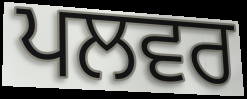
ਪਲਵਰ